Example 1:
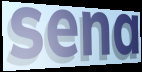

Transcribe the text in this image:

sena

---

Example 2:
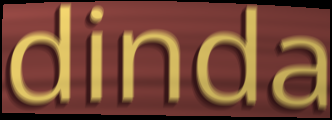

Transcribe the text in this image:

dinda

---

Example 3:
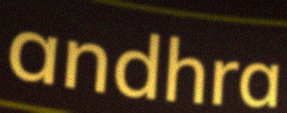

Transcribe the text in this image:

andhra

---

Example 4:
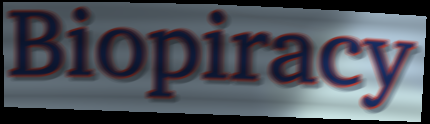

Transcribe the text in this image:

Biopiracy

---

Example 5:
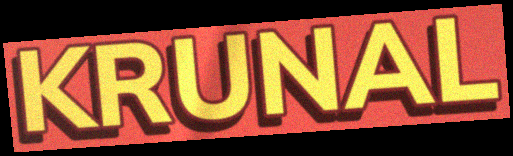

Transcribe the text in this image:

KRUNAL